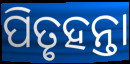
ପିତୃହନ୍ତା